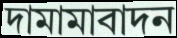
দামামাবাদন